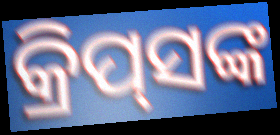
କ୍ରିପ୍‌ସଙ୍କ